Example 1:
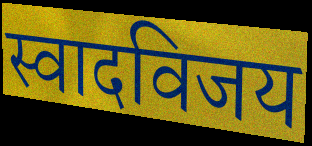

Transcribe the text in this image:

स्वादविजय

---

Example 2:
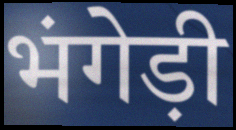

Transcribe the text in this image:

भंगेड़ी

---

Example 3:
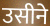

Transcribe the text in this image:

उसीने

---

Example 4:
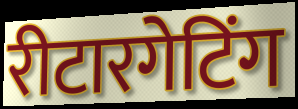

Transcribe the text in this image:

रीटारगेटिंग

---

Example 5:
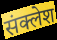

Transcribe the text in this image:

संक्लेश